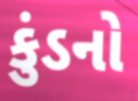
કુંડનો